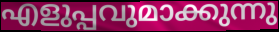
എളുപ്പവുമാക്കുന്നു